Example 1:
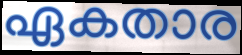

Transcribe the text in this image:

ഏകതാര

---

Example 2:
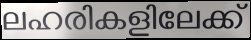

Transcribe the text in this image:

ലഹരികളിലേക്ക്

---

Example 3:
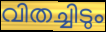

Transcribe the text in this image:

വിതച്ചിടും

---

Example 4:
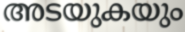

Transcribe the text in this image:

അടയുകയും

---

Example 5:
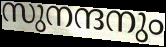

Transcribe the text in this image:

സുനന്ദനും